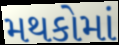
મથકોમાં